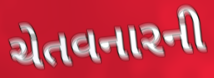
ચેતવનારની